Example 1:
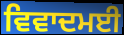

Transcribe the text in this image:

ਵਿਵਾਦਮਈ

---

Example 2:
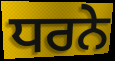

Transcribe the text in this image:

ਧਰਨੇ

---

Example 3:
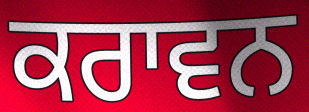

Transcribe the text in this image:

ਕਰਾਵਨ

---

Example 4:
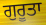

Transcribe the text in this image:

ਗੁਰੂਤਾ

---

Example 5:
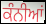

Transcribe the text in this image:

ਕੰਨੀਆਂ